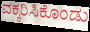
ವಕ್ಕರಿಸಿಕೊಂಡು